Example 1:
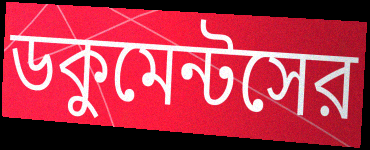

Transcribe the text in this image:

ডকুমেন্টসের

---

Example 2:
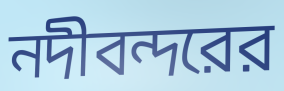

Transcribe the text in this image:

নদীবন্দরের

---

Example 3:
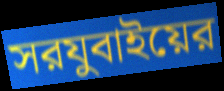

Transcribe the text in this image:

সরযুবাইয়ের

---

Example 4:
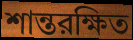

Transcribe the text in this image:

শান্তরক্ষিত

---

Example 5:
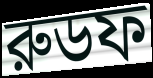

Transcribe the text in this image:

রুডফ